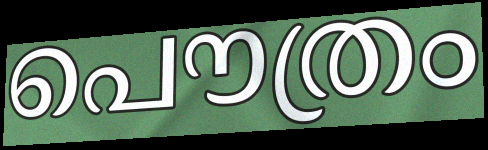
പൌത്രം